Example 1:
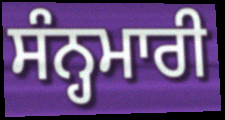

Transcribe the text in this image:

ਸੰਨ੍ਹਮਾਰੀ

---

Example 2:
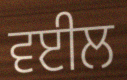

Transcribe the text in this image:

ਵਈਲ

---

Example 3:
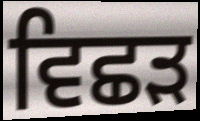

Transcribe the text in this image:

ਵਿਛਡ਼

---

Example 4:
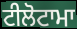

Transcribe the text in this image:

ਟੀਲੋਟਾਮਾ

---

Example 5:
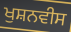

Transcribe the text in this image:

ਖੁਸ਼ਨਵੀਸ